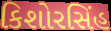
કિશોરસિંહ